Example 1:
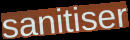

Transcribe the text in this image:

sanitiser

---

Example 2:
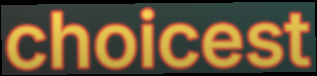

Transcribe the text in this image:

choicest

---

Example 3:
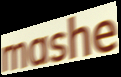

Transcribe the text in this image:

mashe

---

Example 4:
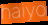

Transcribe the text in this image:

haiyo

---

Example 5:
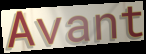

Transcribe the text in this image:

Avant